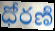
ధోరణి